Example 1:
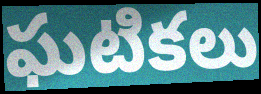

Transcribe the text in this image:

ఘటికలు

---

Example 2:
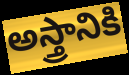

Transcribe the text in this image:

అస్త్రానికి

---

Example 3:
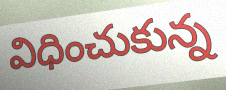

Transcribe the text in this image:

విధించుకున్న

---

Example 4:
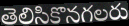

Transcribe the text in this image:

తెలిసికొనగలరు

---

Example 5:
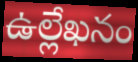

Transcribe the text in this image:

ఉల్లేఖనం